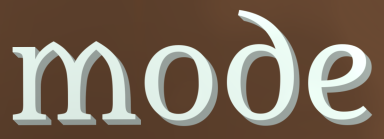
mode